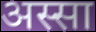
अस्सा